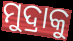
ମୁଦ୍ରାକୁ